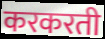
करकरती